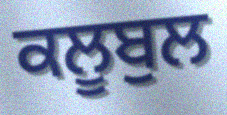
ਕਲੂਬੁਲ